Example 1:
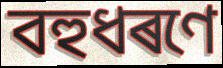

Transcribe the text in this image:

বহুধৰণে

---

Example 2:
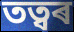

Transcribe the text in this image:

তত্বৰ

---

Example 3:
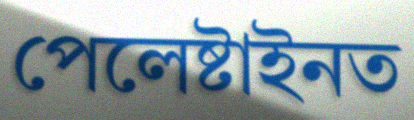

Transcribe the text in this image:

পেলেষ্টাইনত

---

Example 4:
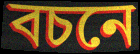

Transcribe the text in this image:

বচনে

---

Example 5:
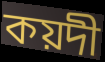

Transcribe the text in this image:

কয়দী